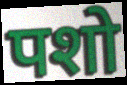
पशो